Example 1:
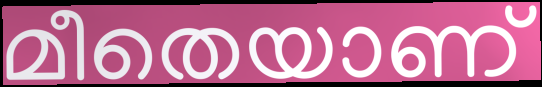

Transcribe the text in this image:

മീതെയാണ്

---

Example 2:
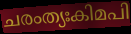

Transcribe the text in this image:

ചരംത്യഃകിമപി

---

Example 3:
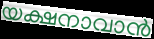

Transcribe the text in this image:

യക്ഷനാവാൻ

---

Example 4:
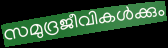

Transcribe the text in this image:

സമുദ്രജീവികൾക്കും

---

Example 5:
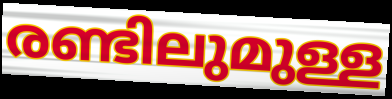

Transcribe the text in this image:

രണ്ടിലുമുള്ള